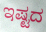
ಇಷ್ಟದ